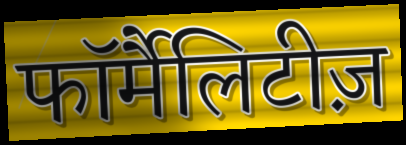
फॉर्मैलिटीज़